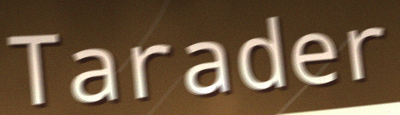
Tarader